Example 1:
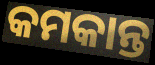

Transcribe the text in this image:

କମକାନ୍ତ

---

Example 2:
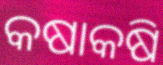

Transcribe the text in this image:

କଷାକଷି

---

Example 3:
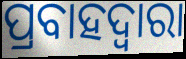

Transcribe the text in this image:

ପ୍ରବାହଦ୍ୱାରା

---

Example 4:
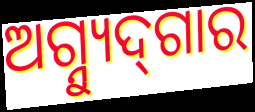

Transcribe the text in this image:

ଅଗ୍ନ୍ୟୁଦ୍‌ଗାର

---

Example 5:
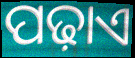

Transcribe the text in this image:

ପଢ଼ାଏ